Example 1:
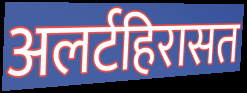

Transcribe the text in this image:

अलर्टहिरासत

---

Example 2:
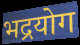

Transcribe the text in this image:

भद्रयोग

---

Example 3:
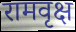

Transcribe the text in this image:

रामवृक्ष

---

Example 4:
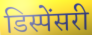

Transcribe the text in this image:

डिस्पेंसरी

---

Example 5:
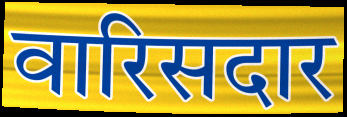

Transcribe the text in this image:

वारिसदार